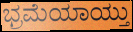
ಭ್ರಮೆಯಾಯ್ತು